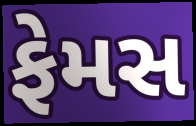
ફેમસ